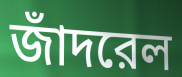
জাঁদরেল